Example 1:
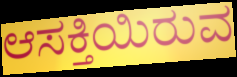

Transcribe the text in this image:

ಆಸಕ್ತಿಯಿರುವ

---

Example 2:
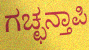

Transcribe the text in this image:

ಗಚ್ಛನ್ತಾಪಿ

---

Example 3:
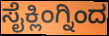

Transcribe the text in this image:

ಸೈಕ್ಲಿಂಗ್ನಿಂದ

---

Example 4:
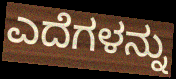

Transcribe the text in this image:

ಎದೆಗಳನ್ನು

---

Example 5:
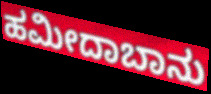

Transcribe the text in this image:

ಹಮೀದಾಬಾನು